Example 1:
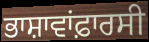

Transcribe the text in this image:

ਭਾਸ਼ਾਵਾਂਫ਼ਾਰਸੀ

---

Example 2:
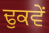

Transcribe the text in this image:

ਢੁਕਵੇਂ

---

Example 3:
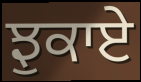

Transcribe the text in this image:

ਝੁਕਾਏ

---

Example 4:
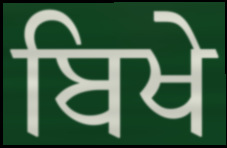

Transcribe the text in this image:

ਬਿਖੇ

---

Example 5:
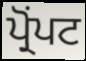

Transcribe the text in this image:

ਪ੍ਰੋਂਪਟ